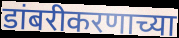
डांबरीकरणाच्या